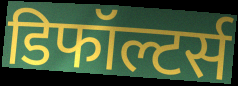
डिफॉल्टर्स